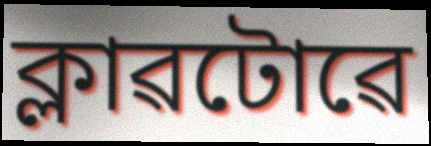
ক্লাৱটোৱে